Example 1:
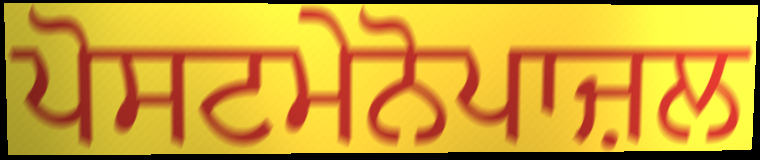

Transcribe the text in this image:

ਪੋਸਟਮੇਨੋਪਾਜ਼ਲ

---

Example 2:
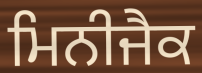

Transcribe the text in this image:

ਮਿਨੀਜੈਕ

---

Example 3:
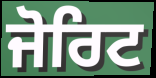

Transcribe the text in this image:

ਜੋਰਿਟ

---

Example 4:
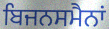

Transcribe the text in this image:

ਬਿਜਨਸਮੈਨਾਂ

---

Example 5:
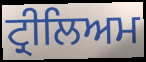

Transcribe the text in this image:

ਟ੍ਰੀਲਿਅਮ